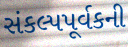
સંકલ્પપૂર્વકની